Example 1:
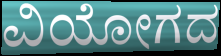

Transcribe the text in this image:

ವಿಯೋಗದ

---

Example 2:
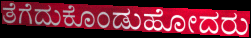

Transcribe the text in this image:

ತೆಗೆದುಕೊಂಡುಹೋದರು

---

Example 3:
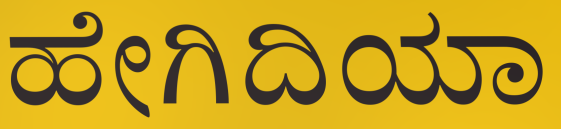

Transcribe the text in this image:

ಹೇಗಿದಿಯಾ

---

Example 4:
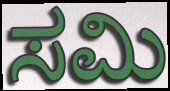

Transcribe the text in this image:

ಸಮಿ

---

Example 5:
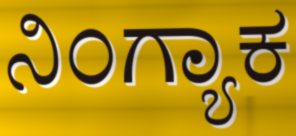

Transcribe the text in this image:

ನಿಂಗ್ಯಾಕ